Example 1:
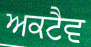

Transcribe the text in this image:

ਅਕਟੈਵ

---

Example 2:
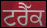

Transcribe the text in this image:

ਟਰੈੱਕ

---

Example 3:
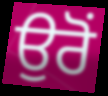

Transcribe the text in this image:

ਉਰੋਂ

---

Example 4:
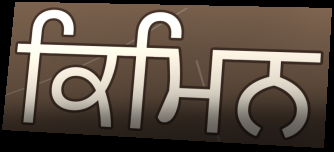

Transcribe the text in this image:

ਕਿਮਿਨ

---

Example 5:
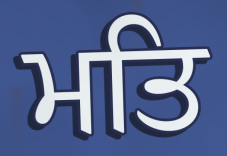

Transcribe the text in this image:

ਮਤਿ